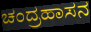
ಚಂದ್ರಹಾಸನ